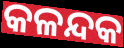
କଳନ୍ଦକ